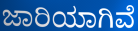
ಜಾರಿಯಾಗಿವೆ